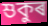
শুকুৰ